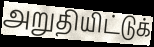
அறுதியிட்டுக்